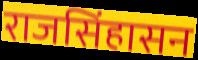
राजसिंहासन